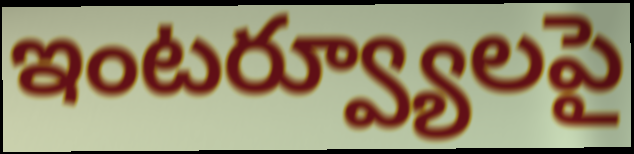
ఇంటర్వ్యూలపై